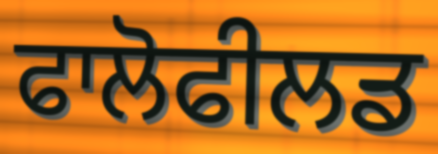
ਫਾਲੋਫੀਲਡ